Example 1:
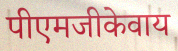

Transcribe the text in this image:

पीएमजीकेवाय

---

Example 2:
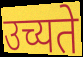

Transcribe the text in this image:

उच्यते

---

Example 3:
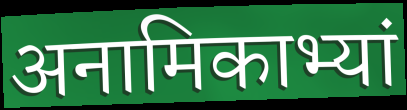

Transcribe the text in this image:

अनामिकाभ्यां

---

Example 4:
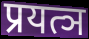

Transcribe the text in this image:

प्रयत्ञ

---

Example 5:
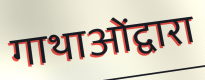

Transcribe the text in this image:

गाथाओंद्वारा